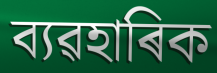
ব্যৱহাৰিক